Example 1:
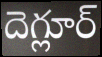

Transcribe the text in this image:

దెగ్లూర్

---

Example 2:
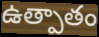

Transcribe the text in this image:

ఉత్పాతం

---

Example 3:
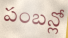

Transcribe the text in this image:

పంబన్లో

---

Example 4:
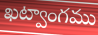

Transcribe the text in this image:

ఖట్వాంగము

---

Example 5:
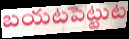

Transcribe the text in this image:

బయటపెట్టుట